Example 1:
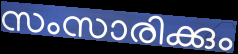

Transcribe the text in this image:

സംസാരിക്കും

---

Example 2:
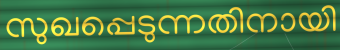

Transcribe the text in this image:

സുഖപ്പെടുന്നതിനായി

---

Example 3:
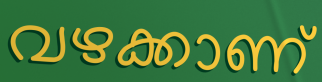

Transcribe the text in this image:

വഴക്കാണ്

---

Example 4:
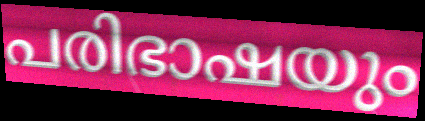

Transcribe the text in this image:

പരിഭാഷയും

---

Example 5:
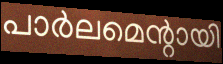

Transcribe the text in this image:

പാർലമെന്റായി